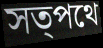
সত্পথে